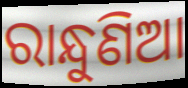
ରାନ୍ଧୁଣିଆ